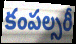
కంపల్సరీ